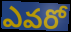
ఎవరో